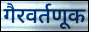
गैरवर्तणूक